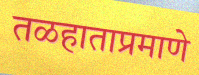
तळहाताप्रमाणे